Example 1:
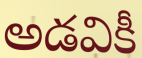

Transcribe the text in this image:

అడవికీ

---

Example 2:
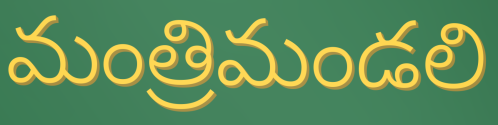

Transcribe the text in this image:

మంత్రిమండలి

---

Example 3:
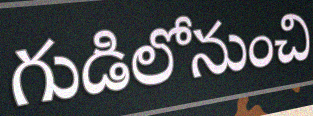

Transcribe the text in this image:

గుడిలోనుంచి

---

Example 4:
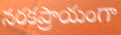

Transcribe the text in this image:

నరకప్రాయంగా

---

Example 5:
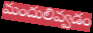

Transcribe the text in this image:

మందులివ్వడం